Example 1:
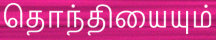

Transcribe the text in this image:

தொந்தியையும்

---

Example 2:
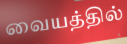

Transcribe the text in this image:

வையத்தில்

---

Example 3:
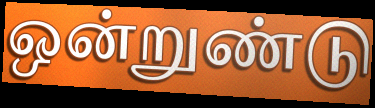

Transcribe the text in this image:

ஒன்றுண்டு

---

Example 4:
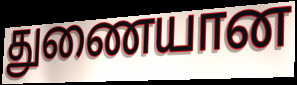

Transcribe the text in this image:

துணையான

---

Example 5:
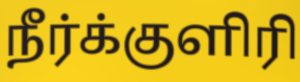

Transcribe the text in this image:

நீர்க்குளிரி